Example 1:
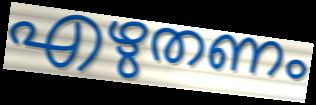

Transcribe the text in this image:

എഴുതണം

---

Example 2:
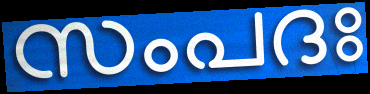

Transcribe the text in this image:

സംപദഃ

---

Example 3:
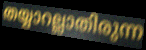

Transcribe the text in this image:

തയ്യാറല്ലാതിരുന്ന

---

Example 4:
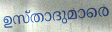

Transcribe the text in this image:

ഉസ്താദുമാരെ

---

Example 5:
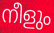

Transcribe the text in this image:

നീളും